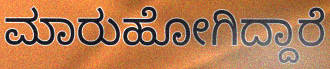
ಮಾರುಹೋಗಿದ್ದಾರೆ